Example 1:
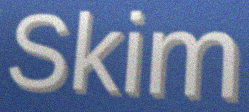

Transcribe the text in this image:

Skim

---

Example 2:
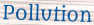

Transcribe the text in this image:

Pollution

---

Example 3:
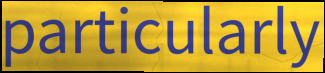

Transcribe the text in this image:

particularly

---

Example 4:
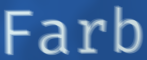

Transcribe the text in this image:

Farb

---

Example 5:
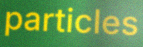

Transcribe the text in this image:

particles